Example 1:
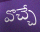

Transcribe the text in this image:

వొచ్చే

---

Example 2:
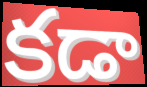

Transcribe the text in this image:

కడా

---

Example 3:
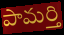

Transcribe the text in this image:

పామర్తి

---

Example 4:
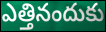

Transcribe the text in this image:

ఎత్తినందుకు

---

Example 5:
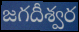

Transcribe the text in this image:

జగదీశ్వర